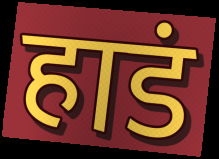
हाडं